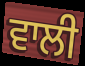
ਵਾਲੀ